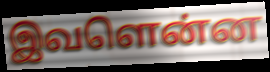
இவளென்ன